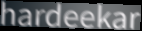
hardeekar